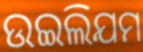
ଉଇଲିଯମ